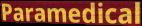
Paramedical